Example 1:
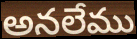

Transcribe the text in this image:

అనలేము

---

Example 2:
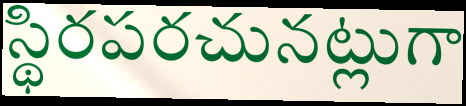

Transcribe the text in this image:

స్థిరపరచునట్లుగా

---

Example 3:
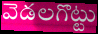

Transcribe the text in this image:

వెడలగొట్టు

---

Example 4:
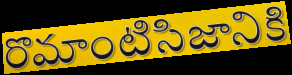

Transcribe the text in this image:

రొమాంటిసిజానికి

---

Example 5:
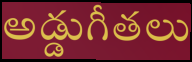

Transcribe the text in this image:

అడ్డుగీతలు